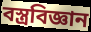
বস্ত্রবিজ্ঞান